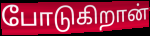
போடுகிறான்